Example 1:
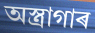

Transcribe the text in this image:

অস্ত্ৰাগাৰ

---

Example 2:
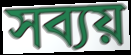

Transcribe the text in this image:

সব্যয়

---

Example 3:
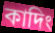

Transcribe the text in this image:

কাদিং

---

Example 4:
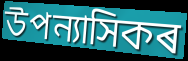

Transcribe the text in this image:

উপন্যাসিকৰ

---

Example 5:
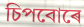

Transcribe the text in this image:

চিপবোৰে